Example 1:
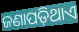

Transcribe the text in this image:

ଜଣାପଡ଼ିଥାଏ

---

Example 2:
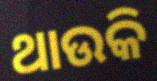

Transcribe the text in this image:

ଥାଉକି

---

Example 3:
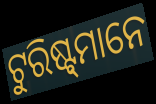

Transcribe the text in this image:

ଟୁରିଷ୍ଟ୍‍ମାନେ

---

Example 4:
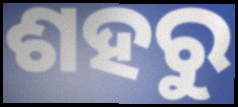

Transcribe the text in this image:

ଶହରୁ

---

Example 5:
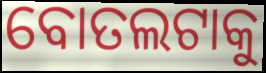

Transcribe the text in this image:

ବୋତଲଟାକୁ